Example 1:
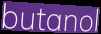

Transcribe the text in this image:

butanol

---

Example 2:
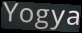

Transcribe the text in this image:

Yogya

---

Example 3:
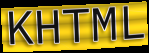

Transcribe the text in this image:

KHTML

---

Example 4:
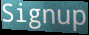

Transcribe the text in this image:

Signup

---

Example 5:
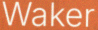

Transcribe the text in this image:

Waker